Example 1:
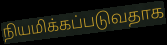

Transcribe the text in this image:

நியமிக்கப்படுவதாக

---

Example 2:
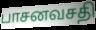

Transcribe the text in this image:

பாசனவசதி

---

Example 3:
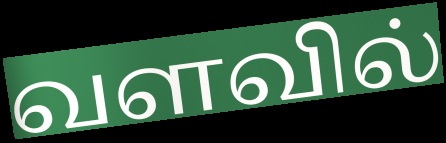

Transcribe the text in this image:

வளவில்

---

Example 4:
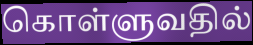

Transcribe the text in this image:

கொள்ளுவதில்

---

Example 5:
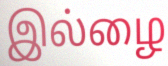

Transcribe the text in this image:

இல்ழை